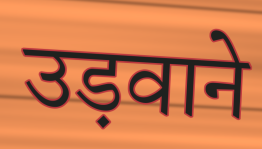
उड़वाने